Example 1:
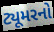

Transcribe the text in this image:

ટ્યૂમરનો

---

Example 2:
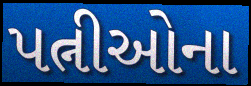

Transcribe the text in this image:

પત્નીઓના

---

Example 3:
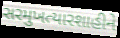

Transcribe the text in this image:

સરમુખત્યારશાહીને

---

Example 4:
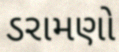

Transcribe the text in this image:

ડરામણો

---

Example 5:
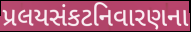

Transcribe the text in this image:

પ્રલયસંકટનિવારણના